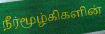
நீர்மூழ்கிகளின்